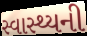
સ્વાસ્થ્યની